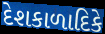
દેશકાળાદિકે